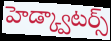
హెడ్క్వాటర్స్